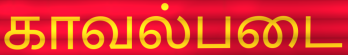
காவல்படை